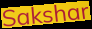
Sakshar